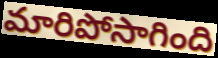
మారిపోసాగింది